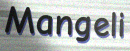
Mangeli